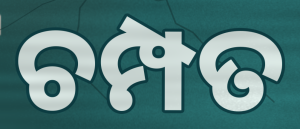
ଚମ୍ପତ